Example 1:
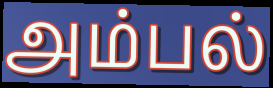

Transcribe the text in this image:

அம்பல்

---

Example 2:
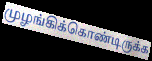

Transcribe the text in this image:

முழங்கிக்கொண்டிருக்க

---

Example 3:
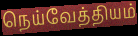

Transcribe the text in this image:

நெய்வேத்தியம்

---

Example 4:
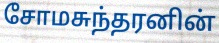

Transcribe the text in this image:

சோமசுந்தரனின்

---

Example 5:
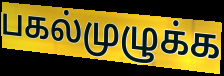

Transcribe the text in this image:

பகல்முழுக்க